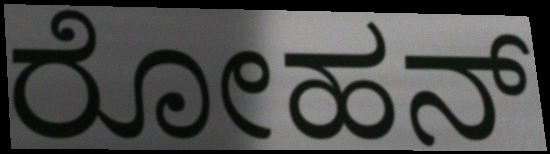
ರೋಹನ್